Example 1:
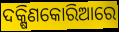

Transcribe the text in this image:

ଦକ୍ଷିଣକୋରିଆରେ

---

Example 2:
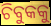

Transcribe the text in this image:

ଚିବୁକକୁ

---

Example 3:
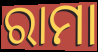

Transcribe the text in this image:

ରାମା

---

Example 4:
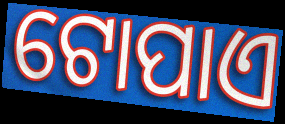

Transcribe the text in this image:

ଟୋପାଏ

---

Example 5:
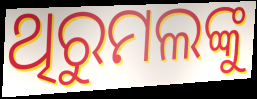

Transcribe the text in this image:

ଥିରୁମଲଙ୍କୁ